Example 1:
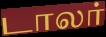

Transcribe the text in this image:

டாலர்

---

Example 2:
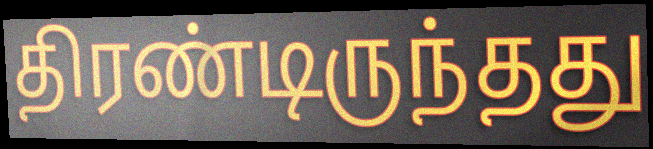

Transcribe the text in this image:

திரண்டிருந்தது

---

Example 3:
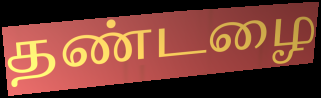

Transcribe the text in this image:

தண்டழை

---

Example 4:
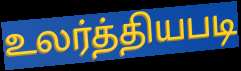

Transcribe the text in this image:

உலர்த்தியபடி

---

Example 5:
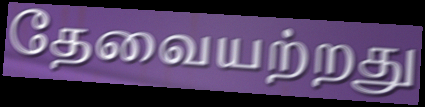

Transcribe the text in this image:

தேவையற்றது